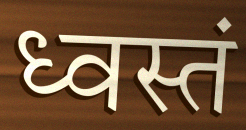
ध्वस्तं